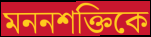
মননশক্তিকে